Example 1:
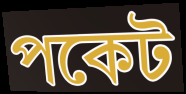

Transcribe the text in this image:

পকেট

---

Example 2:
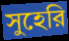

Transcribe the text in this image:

সুহেরি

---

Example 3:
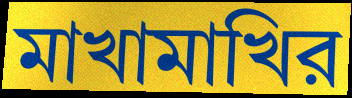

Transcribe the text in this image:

মাখামাখির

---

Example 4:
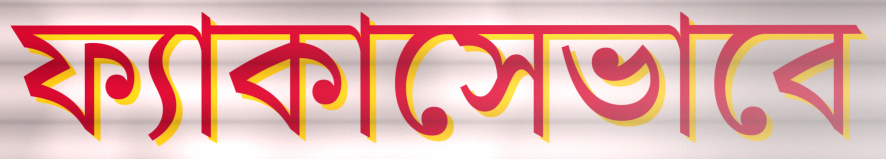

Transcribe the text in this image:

ফ্যাকাসেভাবে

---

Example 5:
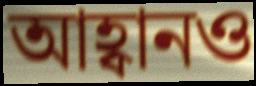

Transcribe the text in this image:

আহ্বানও